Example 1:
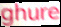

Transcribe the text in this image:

ghure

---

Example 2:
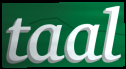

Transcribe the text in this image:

taal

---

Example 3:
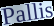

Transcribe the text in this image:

Pallis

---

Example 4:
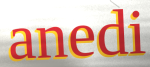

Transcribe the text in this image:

anedi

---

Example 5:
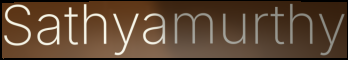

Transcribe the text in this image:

Sathyamurthy